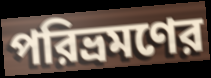
পরিভ্রমণের